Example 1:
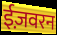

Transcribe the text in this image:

ईज़वरन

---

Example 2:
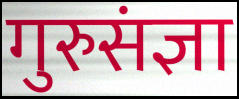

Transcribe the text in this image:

गुरुसंज्ञा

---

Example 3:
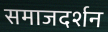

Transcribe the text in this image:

समाजदर्शन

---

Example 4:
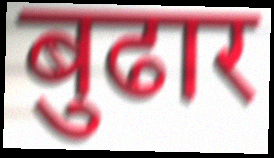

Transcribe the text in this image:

बुढार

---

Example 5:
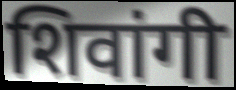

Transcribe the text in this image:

शिवांगी